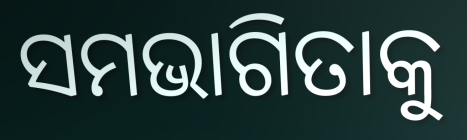
ସମଭାଗିତାକୁ